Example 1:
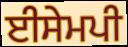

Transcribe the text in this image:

ਈਸੇਮਪੀ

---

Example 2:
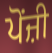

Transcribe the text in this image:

ਪੋਂਜ਼ੀ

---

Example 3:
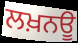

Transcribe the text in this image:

ਲਖ਼ਨਊ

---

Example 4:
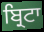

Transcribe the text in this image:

ਬ੍ਰਿਟਾ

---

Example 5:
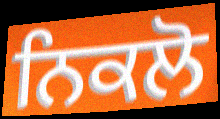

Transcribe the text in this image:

ਨਿਕਲੋ